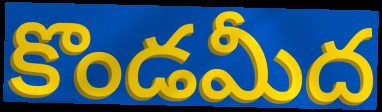
కొండమీద